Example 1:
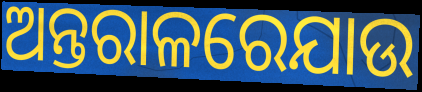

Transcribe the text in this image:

ଅନ୍ତରାଳରେଯାଉ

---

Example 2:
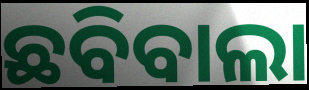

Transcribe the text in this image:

ଛବିବାଲା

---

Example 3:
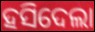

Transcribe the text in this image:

ହସିଦେଲା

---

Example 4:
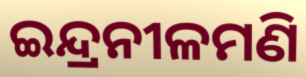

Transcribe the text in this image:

ଇନ୍ଦ୍ରନୀଳମଣି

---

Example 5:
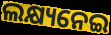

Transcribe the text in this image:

ଲକ୍ଷ୍ୟନେଇ